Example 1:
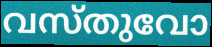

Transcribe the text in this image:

വസ്തുവോ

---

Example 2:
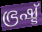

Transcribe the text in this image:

ഭ്രഷ്ട്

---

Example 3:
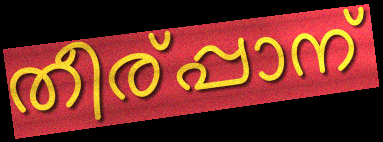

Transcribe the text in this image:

തീര്പ്പാന്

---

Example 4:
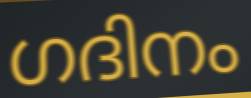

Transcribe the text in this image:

ഗദിനം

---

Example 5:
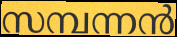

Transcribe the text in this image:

സമ്പന്നൻ